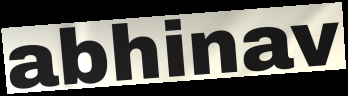
abhinav